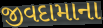
જીવદામાના